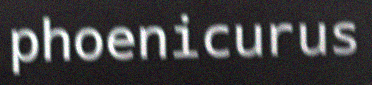
phoenicurus